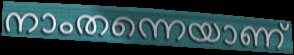
നാംതന്നെയാണ്